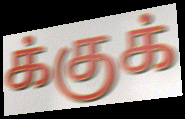
க்குக்